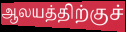
ஆலயத்திற்குச்